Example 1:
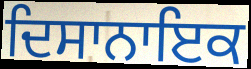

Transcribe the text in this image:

ਦਿਸਾਨਾਇਕ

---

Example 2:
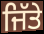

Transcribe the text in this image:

ਜਿੱਤੇ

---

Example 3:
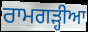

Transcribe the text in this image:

ਰਾਮਗੜ੍ਹੀਆ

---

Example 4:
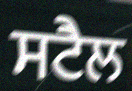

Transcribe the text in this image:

ਸਟੈਲ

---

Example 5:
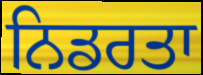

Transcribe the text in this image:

ਨਿਡਰਤਾ